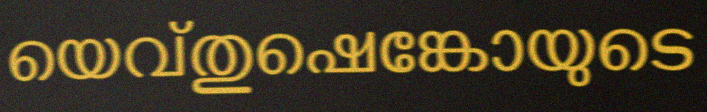
യെവ്തുഷെങ്കോയുടെ